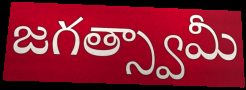
జగత్స్వామీ